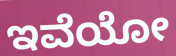
ಇವೆಯೋ